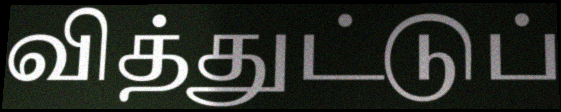
வித்துட்டுப்